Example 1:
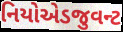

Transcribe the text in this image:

નિયોએડજુવન્ટ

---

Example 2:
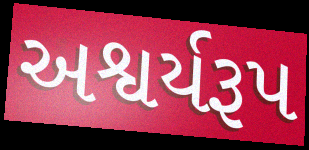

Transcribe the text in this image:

અશ્વર્યરૂપ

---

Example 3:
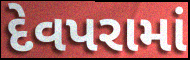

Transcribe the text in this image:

દેવપરામાં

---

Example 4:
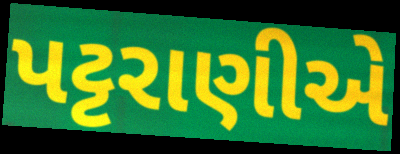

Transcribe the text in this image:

પટ્ટરાણીએ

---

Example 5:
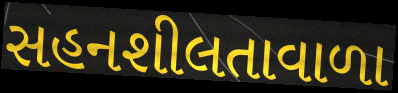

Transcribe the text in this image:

સહનશીલતાવાળા